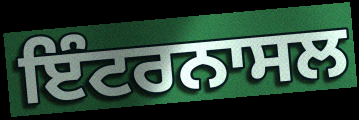
ਇੰਟਰਨਾਸਲ